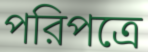
পরিপত্রে